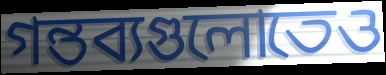
গন্তব্যগুলোতেও